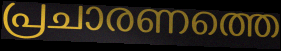
പ്രചാരണത്തെ